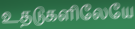
உதடுகளிலேயே